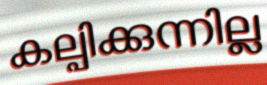
കല്പിക്കുന്നില്ല